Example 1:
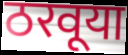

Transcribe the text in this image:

ठरवूया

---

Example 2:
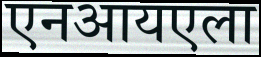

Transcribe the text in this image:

एनआयएला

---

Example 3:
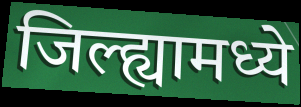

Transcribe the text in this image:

जिल्ह्यामध्ये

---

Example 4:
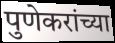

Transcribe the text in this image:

पुणेकरांच्या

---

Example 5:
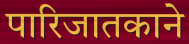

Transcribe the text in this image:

पारिजातकाने